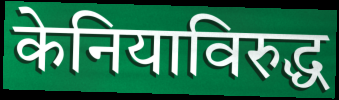
केनियाविरुद्ध